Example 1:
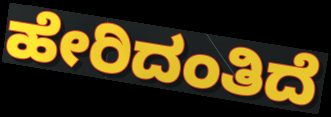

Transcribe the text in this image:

ಹೇರಿದಂತಿದೆ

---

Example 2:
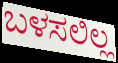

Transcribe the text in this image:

ಬಳಸಲಿಲ್ಲ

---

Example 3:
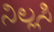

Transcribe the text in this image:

ನಿಲ್ಲಸಿ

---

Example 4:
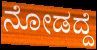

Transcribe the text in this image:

ನೋಡದ್ದೆ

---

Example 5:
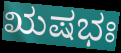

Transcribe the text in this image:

ಋಷಭಃ